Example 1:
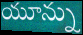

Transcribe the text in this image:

యూన్ను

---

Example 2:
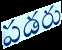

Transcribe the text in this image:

పడరు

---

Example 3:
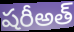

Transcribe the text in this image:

షరీఅత్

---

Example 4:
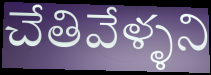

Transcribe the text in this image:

చేతివేళ్ళని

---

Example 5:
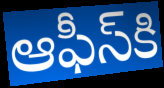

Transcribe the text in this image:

ఆఫీస్‌కి